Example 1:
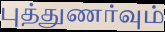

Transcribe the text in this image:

புத்துணர்வும்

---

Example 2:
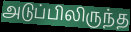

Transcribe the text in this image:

அடுப்பிலிருந்த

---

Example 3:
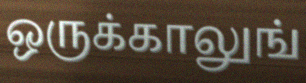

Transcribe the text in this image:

ஒருக்காலுங்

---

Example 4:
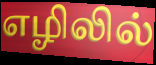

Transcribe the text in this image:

எழிலில்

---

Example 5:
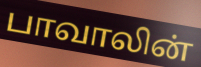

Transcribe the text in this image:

பாவாலின்